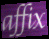
affix